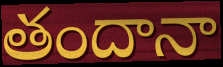
తందానా